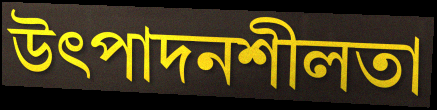
উৎপাদনশীলতা